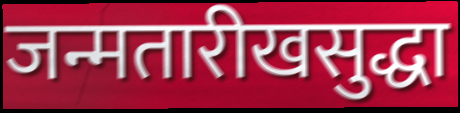
जन्मतारीखसुद्धा